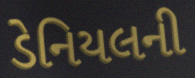
ડેનિયલની